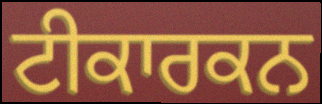
ਟੀਕਾਰਕਨ